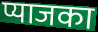
प्याजका